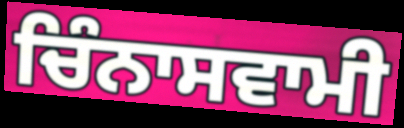
ਚਿੰਨਾਸਵਾਮੀ